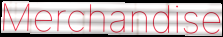
Merchandise